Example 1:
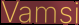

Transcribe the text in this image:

Vamsi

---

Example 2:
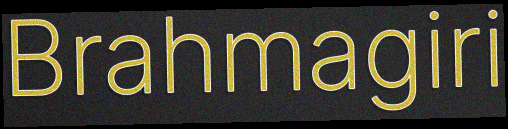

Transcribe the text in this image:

Brahmagiri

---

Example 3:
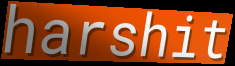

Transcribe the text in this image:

harshit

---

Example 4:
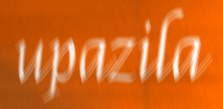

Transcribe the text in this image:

upazila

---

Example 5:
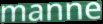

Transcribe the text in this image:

manne